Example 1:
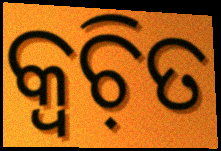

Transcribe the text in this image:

କ୍ୱଚ଼ିତ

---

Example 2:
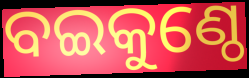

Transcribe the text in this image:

ବଇକୁଣ୍ଠେ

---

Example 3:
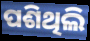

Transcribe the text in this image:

ପଶିଥିଲି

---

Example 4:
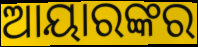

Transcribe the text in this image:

ଆୟାରଙ୍କର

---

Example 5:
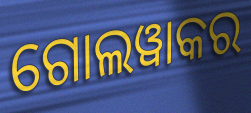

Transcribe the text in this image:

ଗୋଲୱାକର